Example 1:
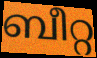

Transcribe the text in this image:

ബീറ്റ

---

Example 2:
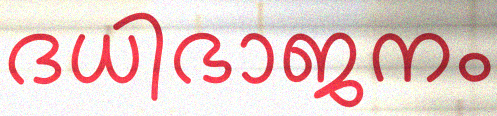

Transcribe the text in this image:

ദധിഭാജനം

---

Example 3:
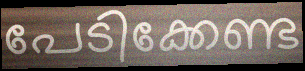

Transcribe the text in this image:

പേടിക്കേണ്ട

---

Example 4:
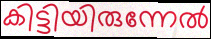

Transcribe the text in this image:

കിട്ടിയിരുന്നേൽ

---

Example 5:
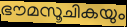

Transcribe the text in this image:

ഭൗമസൂചികയും